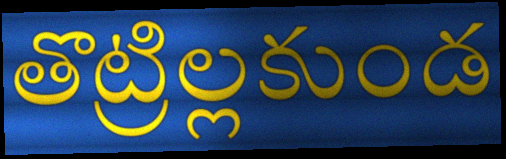
తొట్రిల్లకుండ